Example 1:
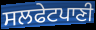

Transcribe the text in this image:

ਸਲਫੇਟਪਾਣੀ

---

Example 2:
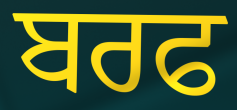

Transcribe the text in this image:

ਬਰਫ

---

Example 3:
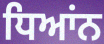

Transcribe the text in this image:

ਧਿਆਂਨ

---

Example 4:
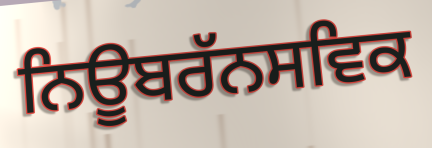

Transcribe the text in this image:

ਨਿਊਬਰੱਨਸਵਿਕ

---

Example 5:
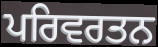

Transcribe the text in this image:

ਪਰਿਵਰਤਨ